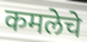
कमलेचे